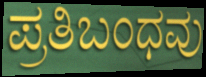
ಪ್ರತಿಬಂಧವು